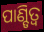
ପାଣ୍ଡିତ୍ୱ